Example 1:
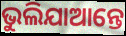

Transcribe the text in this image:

ଭୁଲିଯାଆନ୍ତେ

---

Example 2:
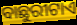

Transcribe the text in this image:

ବାଛୁରୀଟାଏ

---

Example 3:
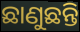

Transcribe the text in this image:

ଛାଣୁଛନ୍ତି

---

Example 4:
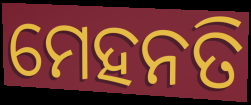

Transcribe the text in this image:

ମେହନତି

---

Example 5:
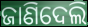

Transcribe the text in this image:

ଜାଣିଦେଲି